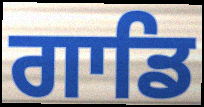
ਗਾਡਿ